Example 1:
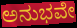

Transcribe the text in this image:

ಅನುಭವೇ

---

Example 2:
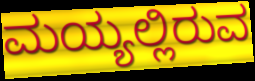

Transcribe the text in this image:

ಮಯ್ಯಲ್ಲಿರುವ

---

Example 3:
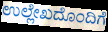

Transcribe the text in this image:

ಉಲ್ಲೇಖದೊಂದಿಗೆ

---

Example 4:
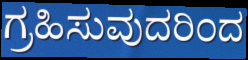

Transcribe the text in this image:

ಗ್ರಹಿಸುವುದರಿಂದ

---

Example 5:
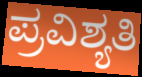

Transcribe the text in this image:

ಪ್ರವಿಶ್ಯತಿ